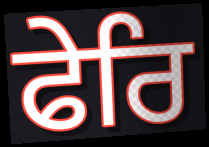
ਫੇਰਿ